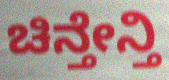
ಚಿನ್ತೇನ್ತಿ